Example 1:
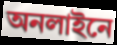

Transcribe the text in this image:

অনলাইনে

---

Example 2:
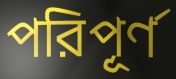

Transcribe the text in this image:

পরিপূর্ণ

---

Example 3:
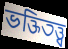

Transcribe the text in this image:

ভক্তিতত্ত্ব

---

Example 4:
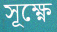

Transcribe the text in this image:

সূক্ষ্ণে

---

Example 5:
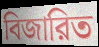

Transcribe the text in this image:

বিজারিত